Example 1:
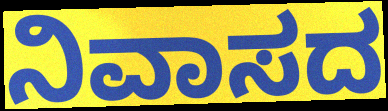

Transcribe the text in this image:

ನಿವಾಸದ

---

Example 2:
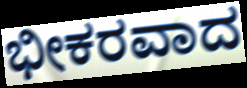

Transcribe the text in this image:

ಭೀಕರವಾದ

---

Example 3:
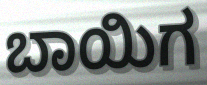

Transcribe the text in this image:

ಬಾಯಿಗ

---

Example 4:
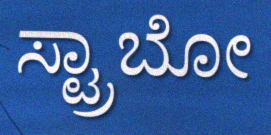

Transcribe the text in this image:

ಸ್ಟ್ರಾಬೋ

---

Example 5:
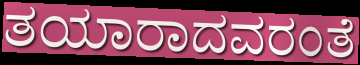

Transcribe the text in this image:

ತಯಾರಾದವರಂತೆ